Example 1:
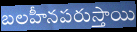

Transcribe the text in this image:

బలహీనపరుస్తాయి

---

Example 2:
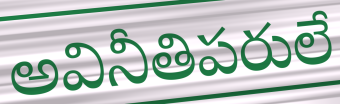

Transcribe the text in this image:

అవినీతిపరులే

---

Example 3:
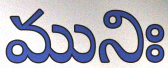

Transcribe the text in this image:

మునిః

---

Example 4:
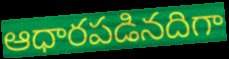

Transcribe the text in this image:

ఆధారపడినదిగా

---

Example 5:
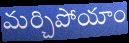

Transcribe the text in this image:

మర్చిపోయాం